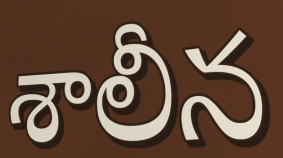
శాలీన